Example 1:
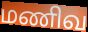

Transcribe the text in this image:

மணிவ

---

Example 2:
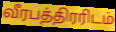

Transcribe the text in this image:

வீரபத்திரரிடம்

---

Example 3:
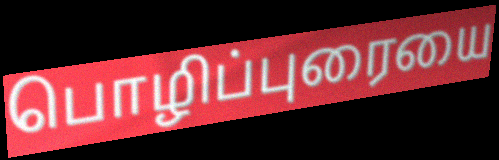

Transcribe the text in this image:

பொழிப்புரையை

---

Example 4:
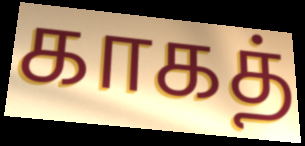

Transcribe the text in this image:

காகத்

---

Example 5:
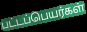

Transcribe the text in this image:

பட்டப்பெயர்கள்